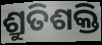
ଶ୍ରୁତିଶକ୍ତି